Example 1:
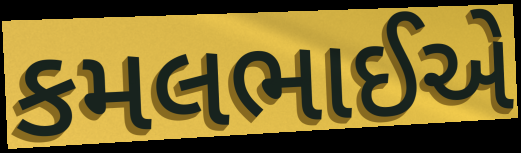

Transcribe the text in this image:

કમલભાઈએ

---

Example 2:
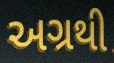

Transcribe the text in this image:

અગ્રથી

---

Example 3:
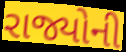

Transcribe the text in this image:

રાજ્યોની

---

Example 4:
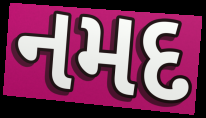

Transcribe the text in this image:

નમદ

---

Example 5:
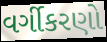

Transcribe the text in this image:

વર્ગીકરણો